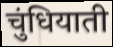
चुंधियाती